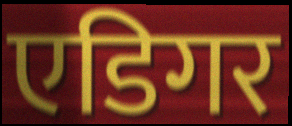
एडिगर